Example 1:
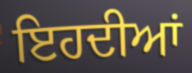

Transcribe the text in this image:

ਇਹਦੀਆਂ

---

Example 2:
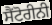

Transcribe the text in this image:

ਸੈਂਟੋਰੀਨੀ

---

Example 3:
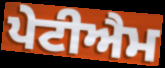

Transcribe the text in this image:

ਪੇਟੀਐਮ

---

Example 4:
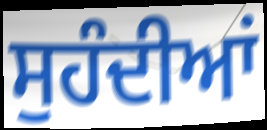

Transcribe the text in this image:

ਸੁਹੰਦੀਆਂ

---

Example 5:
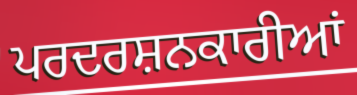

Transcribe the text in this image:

ਪਰਦਰਸ਼ਨਕਾਰੀਆਂ